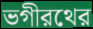
ভগীরথের